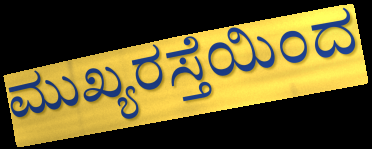
ಮುಖ್ಯರಸ್ತೆಯಿಂದ